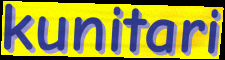
kunitari